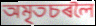
অমৃতচৰলৈ